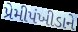
પ્રેમીપંખીડાને